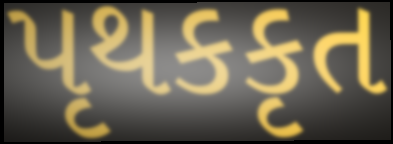
પૃથકકૃત